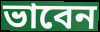
ভাবেন